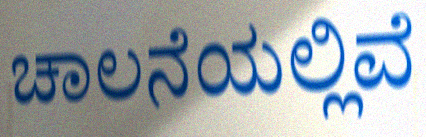
ಚಾಲನೆಯಲ್ಲಿವೆ